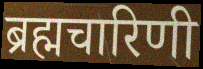
ब्रह्मचारिणी